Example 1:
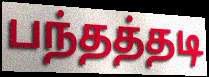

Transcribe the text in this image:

பந்தத்தடி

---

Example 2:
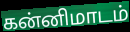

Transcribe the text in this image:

கன்னிமாடம்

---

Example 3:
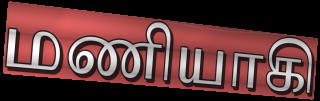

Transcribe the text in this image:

மணியாகி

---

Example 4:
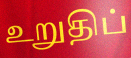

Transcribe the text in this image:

உறுதிப்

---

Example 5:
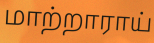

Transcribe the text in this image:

மாற்றாராய்